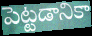
పెట్టడానికా